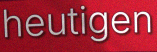
heutigen